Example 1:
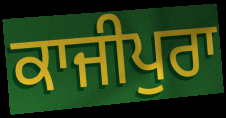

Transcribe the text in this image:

ਕਾਜੀਪੁਰਾ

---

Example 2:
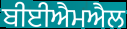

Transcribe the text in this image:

ਬੀਈਐਮਐਲ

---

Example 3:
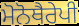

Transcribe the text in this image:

ਮੋਨੋਥੈਰੇਪੀ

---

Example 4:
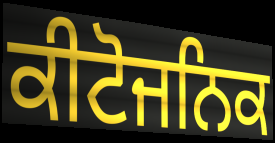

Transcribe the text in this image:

ਕੀਟੋਜਨਿਕ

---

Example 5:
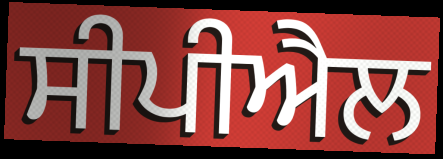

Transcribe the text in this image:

ਸੀਪੀਐਲ